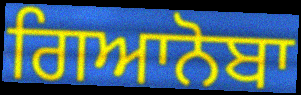
ਗਿਆਨੋਬਾ